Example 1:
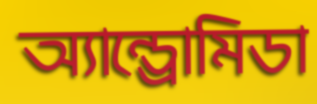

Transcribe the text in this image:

অ্যান্ড্রোমিডা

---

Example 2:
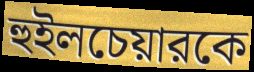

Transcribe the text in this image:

হুইলচেয়ারকে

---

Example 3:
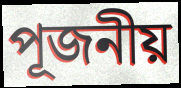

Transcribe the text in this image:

পূজনীয়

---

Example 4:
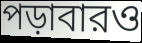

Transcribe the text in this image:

পড়াবারও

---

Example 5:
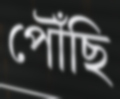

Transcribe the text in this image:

পৌঁছি